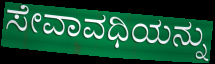
ಸೇವಾವಧಿಯನ್ನು